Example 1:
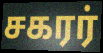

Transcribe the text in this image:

சகரர்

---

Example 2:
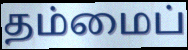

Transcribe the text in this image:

தம்மைப்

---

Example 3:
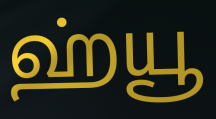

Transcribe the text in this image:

ஹ்யூ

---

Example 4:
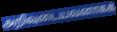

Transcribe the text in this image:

அறிவுடையவனாகக்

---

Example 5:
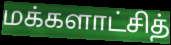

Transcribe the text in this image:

மக்களாட்சித்